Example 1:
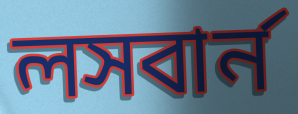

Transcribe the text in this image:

লসবার্ন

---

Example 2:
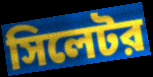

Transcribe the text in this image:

সিলেটর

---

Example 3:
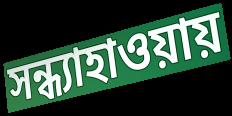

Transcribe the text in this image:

সন্ধ্যাহাওয়ায়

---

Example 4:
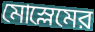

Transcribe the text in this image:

মোস্লেমের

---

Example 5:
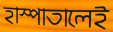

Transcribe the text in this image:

হাস্পাতালেই